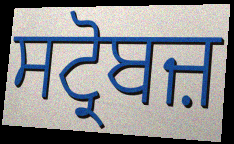
ਸਟ੍ਰੋਬਜ਼